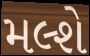
મલ્શે